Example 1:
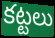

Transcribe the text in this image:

కట్టలు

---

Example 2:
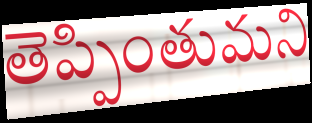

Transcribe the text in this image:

తెప్పింతుమని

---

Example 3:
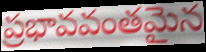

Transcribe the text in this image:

ప్రభావవంతమైన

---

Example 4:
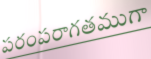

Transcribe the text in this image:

పరంపరాగతముగా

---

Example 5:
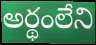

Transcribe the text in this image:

అర్థంలేని